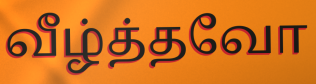
வீழ்த்தவோ